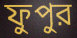
ফুপুর